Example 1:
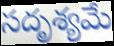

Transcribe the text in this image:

సదృశ్యమే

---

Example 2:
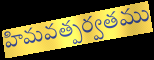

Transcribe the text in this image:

హిమవత్పర్వతము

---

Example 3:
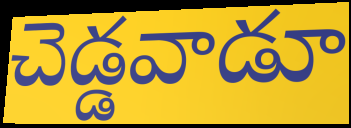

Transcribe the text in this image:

చెడ్డవాడూ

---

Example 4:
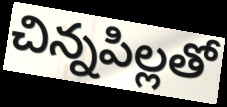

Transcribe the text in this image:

చిన్నపిల్లతో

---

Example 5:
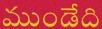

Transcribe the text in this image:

ముండేది